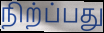
நிற்ப்பது